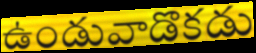
ఉండువాడొకడు